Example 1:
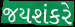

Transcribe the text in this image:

જયશંકરે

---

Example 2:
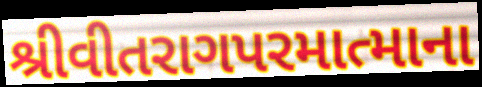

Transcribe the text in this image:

શ્રીવીતરાગપરમાત્માના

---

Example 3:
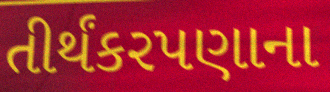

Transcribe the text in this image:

તીર્થંકરપણાના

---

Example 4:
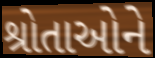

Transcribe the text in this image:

શ્રોતાઓને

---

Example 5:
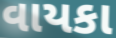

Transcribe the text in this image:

વાયકા